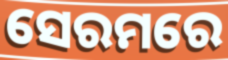
ସେରମରେ